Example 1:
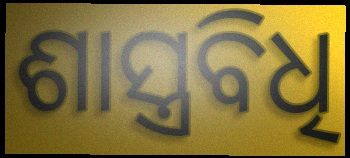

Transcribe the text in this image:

ଶାସ୍ତ୍ରବିଧି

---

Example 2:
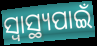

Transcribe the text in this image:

ସ୍ବାସ୍ଥ୍ୟପାଇଁ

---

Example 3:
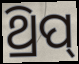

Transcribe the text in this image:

ଥ୍ରିପ୍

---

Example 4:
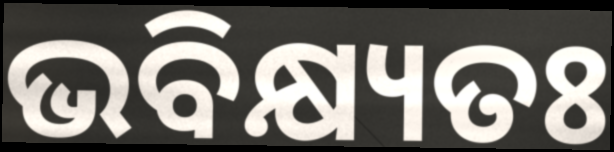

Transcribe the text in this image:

ଭବିକ୍ଷ୍ୟତଃ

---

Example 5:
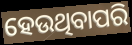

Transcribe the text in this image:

ହେଉଥିବାପରି